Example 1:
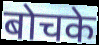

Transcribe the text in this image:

बोचके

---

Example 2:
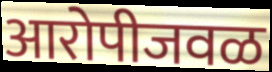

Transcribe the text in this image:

आरोपीजवळ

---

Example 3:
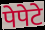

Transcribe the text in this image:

पेपेटे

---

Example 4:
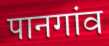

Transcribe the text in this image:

पानगांव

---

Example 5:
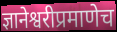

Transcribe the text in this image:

ज्ञानेश्वरीप्रमाणेच